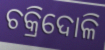
ଚକ୍ରିଦୋଳି